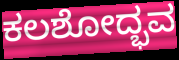
ಕಲಶೋದ್ಭವ